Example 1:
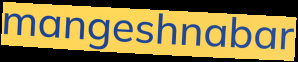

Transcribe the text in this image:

mangeshnabar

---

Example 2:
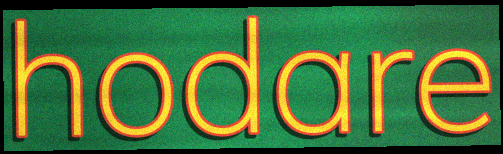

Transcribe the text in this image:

hodare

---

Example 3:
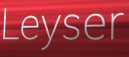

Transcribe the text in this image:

Leyser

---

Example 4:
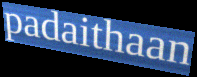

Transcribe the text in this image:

padaithaan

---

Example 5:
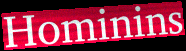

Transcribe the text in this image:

Hominins